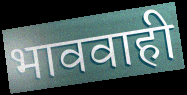
भाववाही